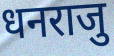
धनराजु